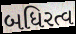
બધિરત્વ